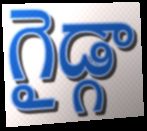
గైడ్గా